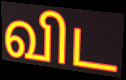
விட